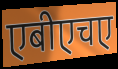
एबीएचए